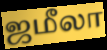
ஜமீலா